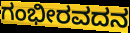
ಗಂಭೀರವದನ